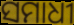
ସମାଧୀ